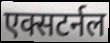
एक्सटर्नल